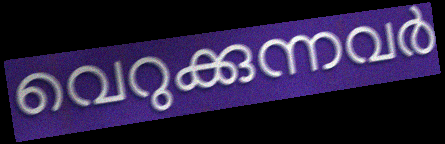
വെറുക്കുന്നവർ